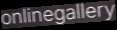
onlinegallery